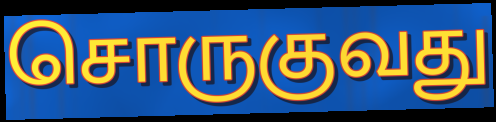
சொருகுவது